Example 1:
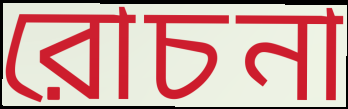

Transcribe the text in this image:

রোচনা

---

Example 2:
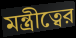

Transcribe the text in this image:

মন্ত্রীত্বের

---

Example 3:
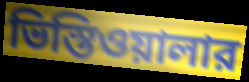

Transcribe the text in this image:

ভিস্তিওয়ালার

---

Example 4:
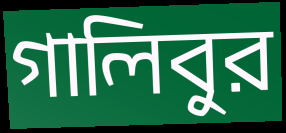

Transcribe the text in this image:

গালিবুর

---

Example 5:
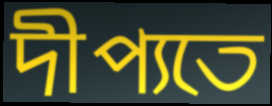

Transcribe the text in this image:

দীপ্যতে